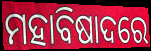
ମହାବିଷାଦରେ